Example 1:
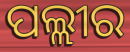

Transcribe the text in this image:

ପଲ୍ଲୀର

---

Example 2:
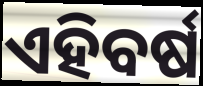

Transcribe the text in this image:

ଏହିବର୍ଷ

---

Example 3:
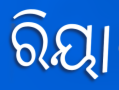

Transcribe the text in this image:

ରିୟା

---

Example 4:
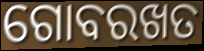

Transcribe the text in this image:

ଗୋବରଖତ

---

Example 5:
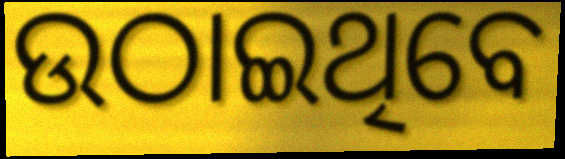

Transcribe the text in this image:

ଉଠାଇଥିବେ